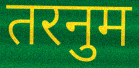
तरनुम